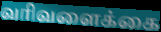
வரிவளைக்கை